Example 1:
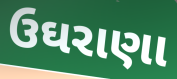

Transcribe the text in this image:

ઉઘરાણા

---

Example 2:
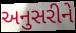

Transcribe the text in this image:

અનુસરીને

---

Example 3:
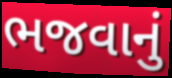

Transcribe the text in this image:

ભજવાનું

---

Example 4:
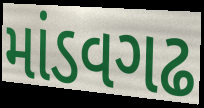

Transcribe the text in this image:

માંડવગઢ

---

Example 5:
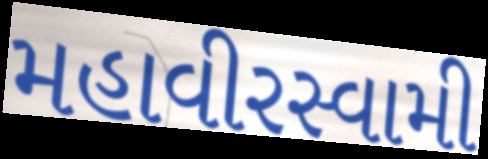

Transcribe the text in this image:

મહાવીરસ્વામી